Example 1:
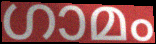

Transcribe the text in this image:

ഗാമം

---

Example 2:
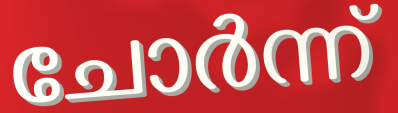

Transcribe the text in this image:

ചോർന്ന്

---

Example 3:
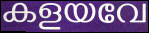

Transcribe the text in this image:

കളയവേ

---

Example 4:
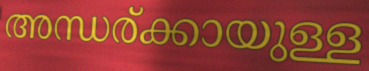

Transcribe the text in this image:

അന്ധര്ക്കായുള്ള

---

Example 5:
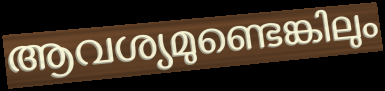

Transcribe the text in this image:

ആവശ്യമുണ്ടെങ്കിലും